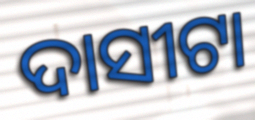
ଦାସୀଟା